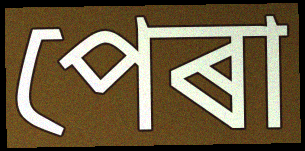
পেৰা